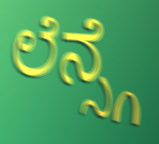
ಲೆನ್ಸ್ಗೆ